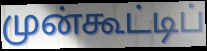
முன்கூட்டிப்